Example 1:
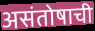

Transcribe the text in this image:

असंतोषाची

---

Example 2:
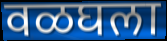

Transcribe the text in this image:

वळघला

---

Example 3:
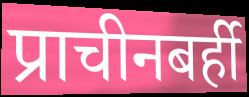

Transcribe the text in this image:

प्राचीनबर्ही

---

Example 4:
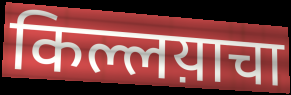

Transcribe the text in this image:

किल्लय़ाचा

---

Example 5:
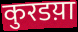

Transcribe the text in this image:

कुरडय़ा